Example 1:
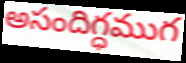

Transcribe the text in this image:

అసందిగ్ధముగ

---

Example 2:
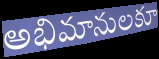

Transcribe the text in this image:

అభిమానులకూ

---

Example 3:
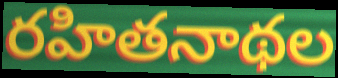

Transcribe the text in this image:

రహితనాథల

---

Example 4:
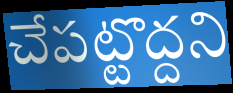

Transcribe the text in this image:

చేపట్టొద్దని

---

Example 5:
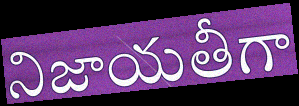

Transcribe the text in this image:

నిజాయతీగా